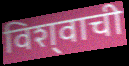
विश्वाची